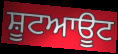
ਸ਼ੂਟਆਊਟ